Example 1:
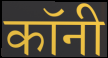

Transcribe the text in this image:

कॉनी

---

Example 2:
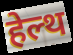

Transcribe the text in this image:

हेल्थ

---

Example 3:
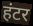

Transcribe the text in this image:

हंटर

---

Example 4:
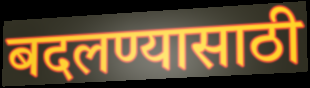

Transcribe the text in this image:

बदलण्यासाठी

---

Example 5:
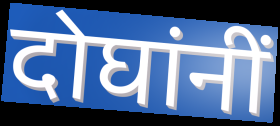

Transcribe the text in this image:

दोघांनीं